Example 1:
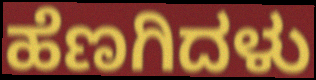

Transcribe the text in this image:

ಹೆಣಗಿದಳು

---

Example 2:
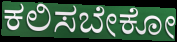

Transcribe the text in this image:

ಕಲಿಸಬೇಕೋ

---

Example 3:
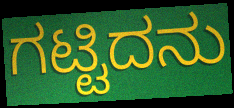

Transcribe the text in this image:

ಗಟ್ಟಿದನು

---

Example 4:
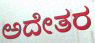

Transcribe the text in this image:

ಅದೇತರ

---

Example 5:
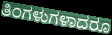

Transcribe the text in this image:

ತಿಂಗಳುಗಳಾದರೂ